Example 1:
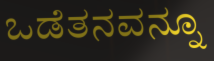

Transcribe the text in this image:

ಒಡೆತನವನ್ನೂ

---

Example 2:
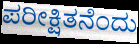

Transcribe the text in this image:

ಪರೀಕ್ಷಿತನೆಂದು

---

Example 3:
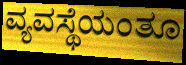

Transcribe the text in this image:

ವ್ಯವಸ್ಥೆಯಂತೂ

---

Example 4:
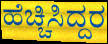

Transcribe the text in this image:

ಹೆಚ್ಚಿಸಿದ್ದರ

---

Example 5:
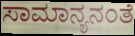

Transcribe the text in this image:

ಸಾಮಾನ್ಯನಂತೆ